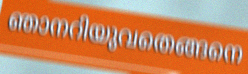
ഞാനറിയുവതെങ്ങനെ